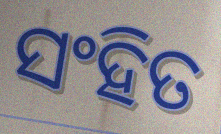
ସଂହିତ